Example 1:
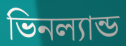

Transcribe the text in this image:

ভিনল্যান্ড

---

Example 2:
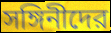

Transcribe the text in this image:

সঙ্গিনীদের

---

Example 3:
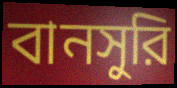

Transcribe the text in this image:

বানসুরি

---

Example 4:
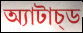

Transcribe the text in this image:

অ্যাটাচ্ড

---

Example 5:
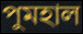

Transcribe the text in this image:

পুমহাল